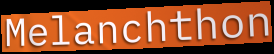
Melanchthon